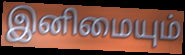
இனிமையும்